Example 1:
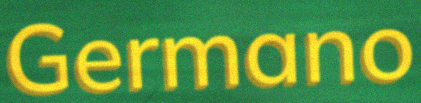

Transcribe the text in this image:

Germano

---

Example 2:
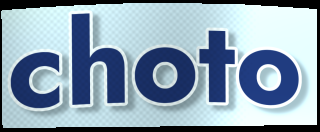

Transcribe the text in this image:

choto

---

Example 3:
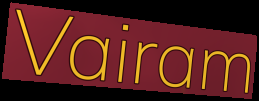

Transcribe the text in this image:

Vairam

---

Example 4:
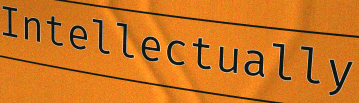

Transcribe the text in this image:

Intellectually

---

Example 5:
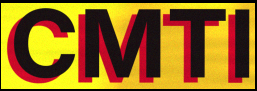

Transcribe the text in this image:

CMTI